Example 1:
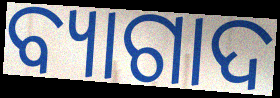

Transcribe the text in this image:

ବ୍ୟାଗାଦ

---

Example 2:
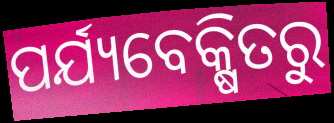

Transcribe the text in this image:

ପର୍ଯ୍ୟବେକ୍ଷିତରୁ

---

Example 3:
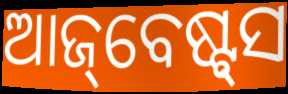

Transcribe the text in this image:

ଆଜ୍‌ବେଷ୍ଟ୍‌ସ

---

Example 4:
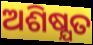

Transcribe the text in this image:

ଅଶିଷ୍ଯତ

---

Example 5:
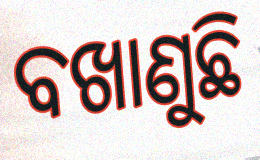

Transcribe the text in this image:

ବଖାଣୁଛି